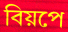
বিয়পে